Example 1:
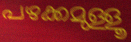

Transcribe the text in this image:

പഴക്കമുള്ളൂ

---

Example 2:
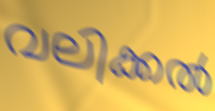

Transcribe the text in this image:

വലിക്കൽ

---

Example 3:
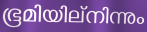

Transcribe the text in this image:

ഭൂമിയില്നിന്നും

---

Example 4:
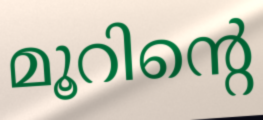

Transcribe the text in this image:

മൂറിന്റെ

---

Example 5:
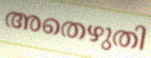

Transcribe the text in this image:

അതെഴുതി